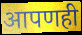
आपणही